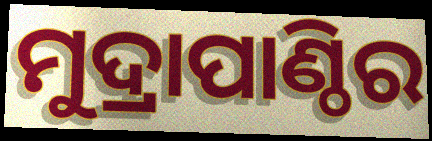
ମୁଦ୍ରାପାଣ୍ଠିର